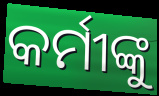
କର୍ମୀଙ୍କୁ